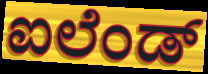
ಐಲೆಂಡ್